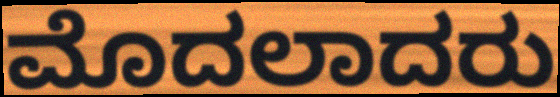
ಮೊದಲಾದರು